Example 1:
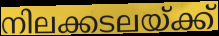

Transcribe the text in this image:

നിലക്കടലയ്ക്ക്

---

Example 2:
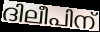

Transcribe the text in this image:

ദിലീപിന്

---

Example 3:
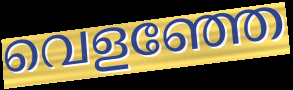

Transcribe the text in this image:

വെളഞ്ഞേ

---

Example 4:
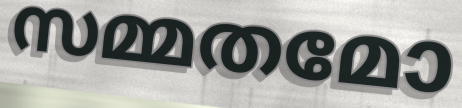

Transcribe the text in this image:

സമ്മതമോ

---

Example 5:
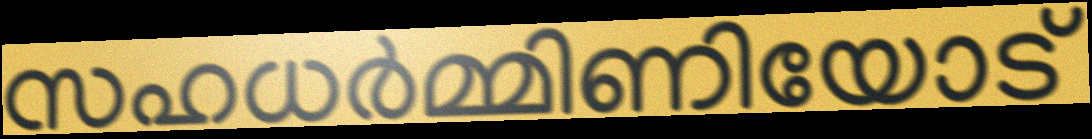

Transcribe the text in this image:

സഹധർമ്മിണിയോട്